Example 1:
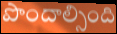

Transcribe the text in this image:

పొందాల్సింది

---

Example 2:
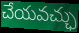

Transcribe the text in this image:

చేయవచ్ఛు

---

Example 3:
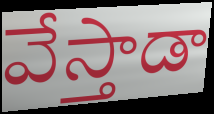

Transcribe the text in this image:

వేస్తాడా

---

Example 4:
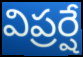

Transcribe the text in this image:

విప్రర్షే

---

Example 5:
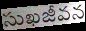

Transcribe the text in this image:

సుఖజీవన